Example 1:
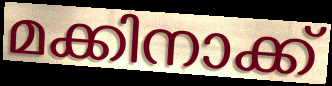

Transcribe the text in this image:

മക്കിനാക്ക്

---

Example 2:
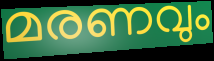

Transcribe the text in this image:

മരണവും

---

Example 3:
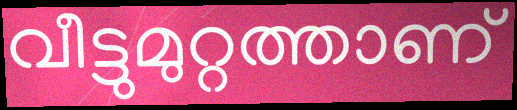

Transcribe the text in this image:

വീട്ടുമുറ്റത്താണ്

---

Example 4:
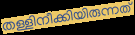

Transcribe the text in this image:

തള്ളിനീക്കിയിരുന്നത്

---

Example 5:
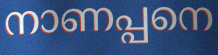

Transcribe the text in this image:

നാണപ്പനെ